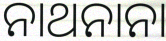
ନାଥନାନା